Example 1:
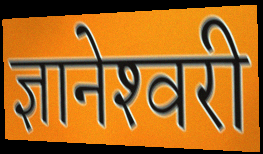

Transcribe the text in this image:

ज्ञानेश्‍वरी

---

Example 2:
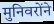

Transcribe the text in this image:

मुनिवरोंने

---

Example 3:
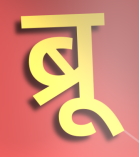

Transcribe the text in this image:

ब्रू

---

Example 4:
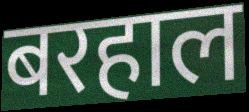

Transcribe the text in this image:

बरहाल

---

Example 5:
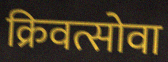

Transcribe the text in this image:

क्रिवत्सोवा